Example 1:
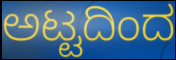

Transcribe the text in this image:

ಅಟ್ಟದಿಂದ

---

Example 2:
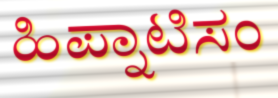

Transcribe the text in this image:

ಹಿಪ್ನಾಟಿಸಂ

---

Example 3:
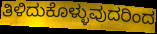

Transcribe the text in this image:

ತಿಳಿದುಕೊಳ್ಳುವುದರಿಂದ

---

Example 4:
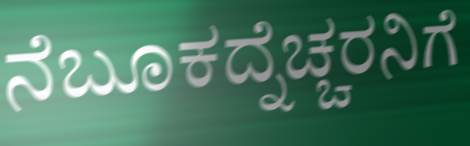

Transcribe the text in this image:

ನೆಬೂಕದ್ನೆಚ್ಚರನಿಗೆ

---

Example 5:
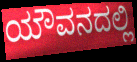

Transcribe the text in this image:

ಯೌವನದಲ್ಲಿ